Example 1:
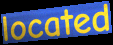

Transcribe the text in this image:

located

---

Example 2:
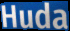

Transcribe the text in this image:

Huda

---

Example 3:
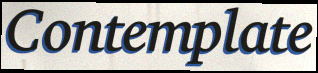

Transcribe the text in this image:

Contemplate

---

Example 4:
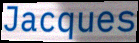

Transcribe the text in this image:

Jacques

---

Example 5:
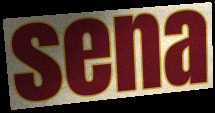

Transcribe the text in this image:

sena